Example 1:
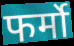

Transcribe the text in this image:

फर्मो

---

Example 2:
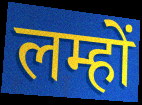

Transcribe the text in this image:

लम्हों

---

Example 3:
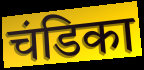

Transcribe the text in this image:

चंडिका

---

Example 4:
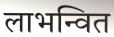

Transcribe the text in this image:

लाभन्वित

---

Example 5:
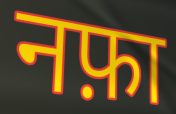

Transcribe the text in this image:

नफ़ा